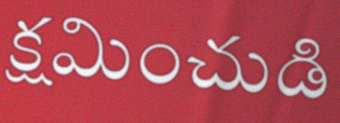
క్షమించుడి